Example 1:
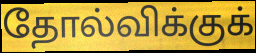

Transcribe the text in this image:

தோல்விக்குக்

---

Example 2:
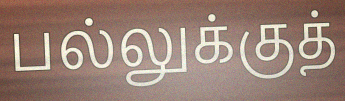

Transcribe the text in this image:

பல்லுக்குத்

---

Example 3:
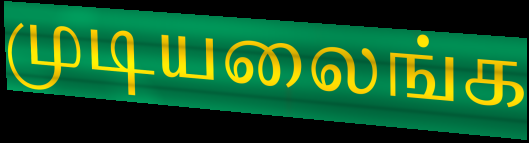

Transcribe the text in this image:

முடியலைங்க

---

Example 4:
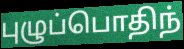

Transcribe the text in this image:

புழுப்பொதிந்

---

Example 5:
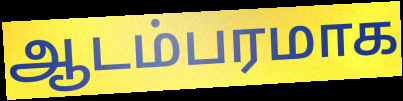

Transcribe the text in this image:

ஆடம்பரமாக